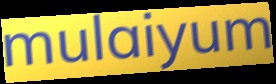
mulaiyum